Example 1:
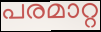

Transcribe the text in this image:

പരമാറ്റ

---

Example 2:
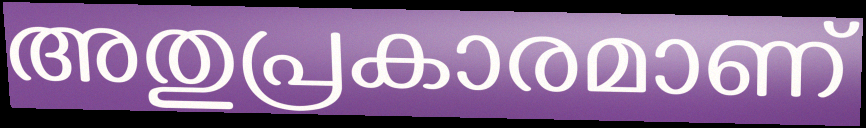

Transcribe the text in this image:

അതുപ്രകാരമാണ്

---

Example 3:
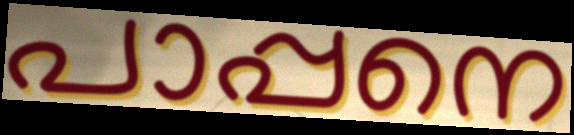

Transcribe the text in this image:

പാപ്പനെ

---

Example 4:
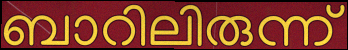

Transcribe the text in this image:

ബാറിലിരുന്ന്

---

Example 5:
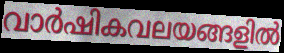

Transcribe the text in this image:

വാർഷികവലയങ്ങളിൽ